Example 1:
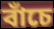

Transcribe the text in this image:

বাঁচে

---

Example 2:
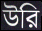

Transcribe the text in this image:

উরি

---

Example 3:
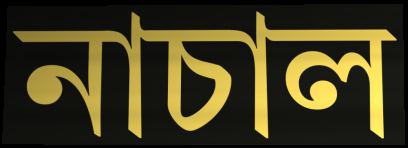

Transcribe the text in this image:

নাচাল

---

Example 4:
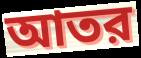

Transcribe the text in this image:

আতর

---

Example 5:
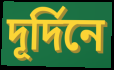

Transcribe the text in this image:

দূর্দিনে